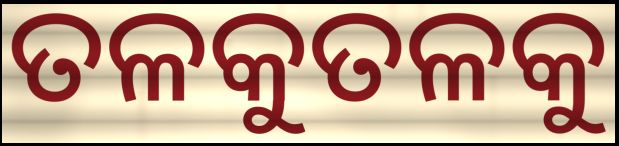
ତଳକୁତଳକୁ